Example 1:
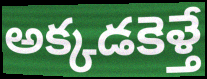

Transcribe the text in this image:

అక్కడకెళ్తే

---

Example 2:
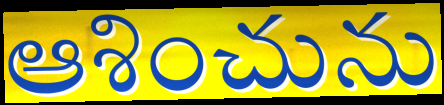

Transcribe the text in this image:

ఆశించును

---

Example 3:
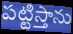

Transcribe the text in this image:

పట్టిస్తాను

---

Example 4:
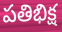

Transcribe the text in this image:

పతిభిక్ష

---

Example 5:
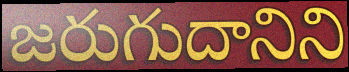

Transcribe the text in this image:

జరుగుదానిని